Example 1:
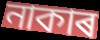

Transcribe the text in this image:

নাকাৰ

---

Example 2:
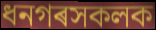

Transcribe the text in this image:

ধনগৰসকলক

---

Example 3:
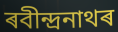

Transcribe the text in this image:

ৰবীন্দ্ৰনাথৰ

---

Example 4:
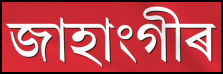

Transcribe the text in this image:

জাহাংগীৰ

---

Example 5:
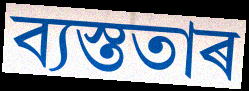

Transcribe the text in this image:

ব্যস্ততাৰ